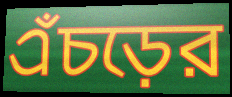
এঁচড়ের